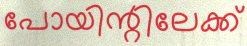
പോയിന്റിലേക്ക്